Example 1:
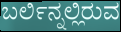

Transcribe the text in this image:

ಬರ್ಲಿನ್ನಲ್ಲಿರುವ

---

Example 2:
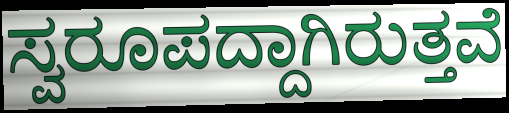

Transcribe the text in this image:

ಸ್ವರೂಪದ್ದಾಗಿರುತ್ತವೆ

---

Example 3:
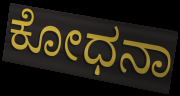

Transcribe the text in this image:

ಕೋಧನಾ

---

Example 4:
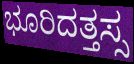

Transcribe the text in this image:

ಭೂರಿದತ್ತಸ್ಸ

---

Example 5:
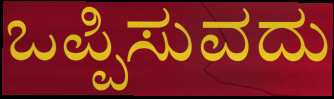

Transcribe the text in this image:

ಒಪ್ಪಿಸುವದು